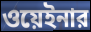
ওয়েইনার